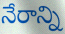
నేరాన్ని